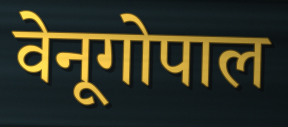
वेनूगोपाल